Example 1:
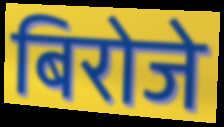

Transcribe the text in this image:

बिरोजे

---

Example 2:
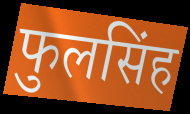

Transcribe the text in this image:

फुलसिंह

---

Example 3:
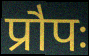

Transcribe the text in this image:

प्रौपः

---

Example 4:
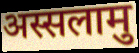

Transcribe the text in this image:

अस्सलामु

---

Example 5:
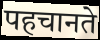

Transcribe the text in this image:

पहचानते